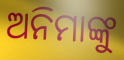
ଅନିମାଙ୍କୁ